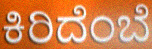
ಕಿರಿದೆಂಬೆ